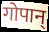
गोपान्